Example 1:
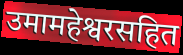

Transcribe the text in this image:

उमामहेश्वरसहित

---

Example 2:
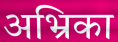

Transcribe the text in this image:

अभ्रिका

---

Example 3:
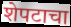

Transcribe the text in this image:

शेपटाचा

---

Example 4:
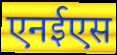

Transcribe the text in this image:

एनईएस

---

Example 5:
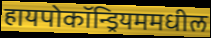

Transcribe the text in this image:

हायपोकॉन्ड्रियममधील